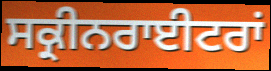
ਸਕ੍ਰੀਨਰਾਈਟਰਾਂ